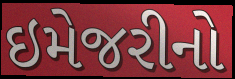
ઇમેજરીનો